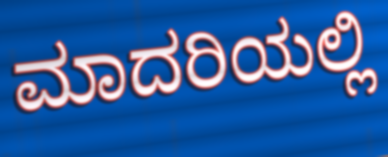
ಮಾದರಿಯಲ್ಲಿ